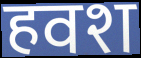
हवश